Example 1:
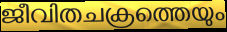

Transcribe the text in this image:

ജീവിതചക്രത്തെയും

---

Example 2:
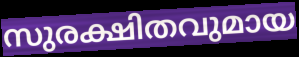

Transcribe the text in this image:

സുരക്ഷിതവുമായ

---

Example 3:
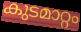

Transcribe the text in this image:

കുടമാറ്റം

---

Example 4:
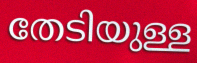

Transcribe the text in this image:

തേടിയുള്ള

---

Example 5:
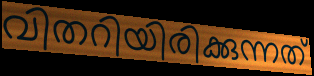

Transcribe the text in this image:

വിതറിയിരിക്കുന്നത്